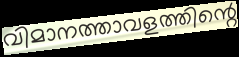
വിമാനത്താവളത്തിന്റെ